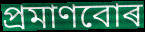
প্ৰমাণবোৰ